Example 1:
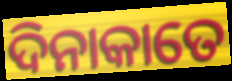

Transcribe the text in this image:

ଦିନାକାତେ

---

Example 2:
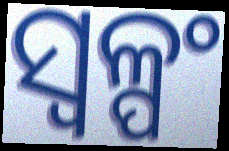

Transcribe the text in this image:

ସ୍ୱଳ୍ପଂ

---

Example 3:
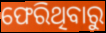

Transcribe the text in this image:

ଫେରିଥିବାରୁ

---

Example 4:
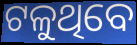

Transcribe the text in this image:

ଟଳୁଥିବେ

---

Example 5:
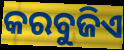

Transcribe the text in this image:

କରବୁଜିଏ